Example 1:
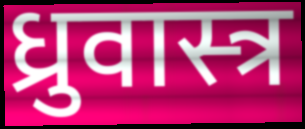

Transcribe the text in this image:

ध्रुवास्त्र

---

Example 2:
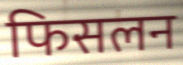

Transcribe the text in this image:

फिसलन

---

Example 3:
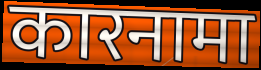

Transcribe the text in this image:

कारनामा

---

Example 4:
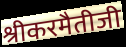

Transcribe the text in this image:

श्रीकरमैतीजी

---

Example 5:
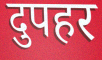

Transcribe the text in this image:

दुपहर